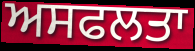
ਅਸਫਲਤਾ